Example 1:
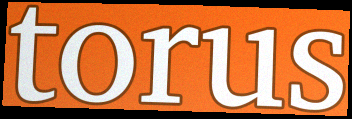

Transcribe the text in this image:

torus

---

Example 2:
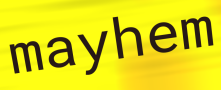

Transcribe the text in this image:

mayhem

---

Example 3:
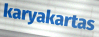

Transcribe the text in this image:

karyakartas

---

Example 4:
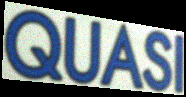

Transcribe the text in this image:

QUASI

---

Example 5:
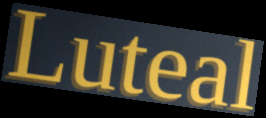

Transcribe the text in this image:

Luteal